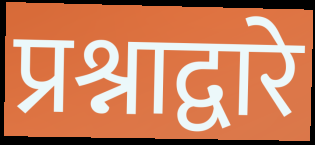
प्रश्नाद्वारे